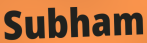
Subham